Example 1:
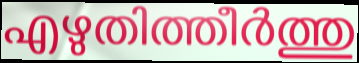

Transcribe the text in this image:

എഴുതിത്തീർത്തു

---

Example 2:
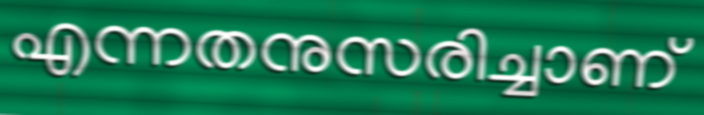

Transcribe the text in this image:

എന്നതനുസരിച്ചാണ്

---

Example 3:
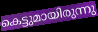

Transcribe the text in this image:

കെട്ടുമായിരുന്നു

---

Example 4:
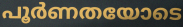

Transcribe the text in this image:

പൂർണതയോടെ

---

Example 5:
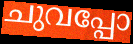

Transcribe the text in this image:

ചുവപ്പോ